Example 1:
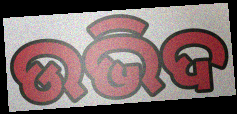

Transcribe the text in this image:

ଉଭିଦ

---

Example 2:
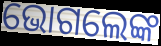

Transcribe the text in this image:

ଭୋଗଲେଙ୍କ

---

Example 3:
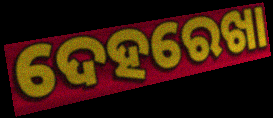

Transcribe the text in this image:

ଦେହରେଖା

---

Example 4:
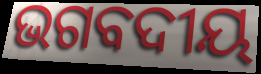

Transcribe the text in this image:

ଭଗବଦୀୟ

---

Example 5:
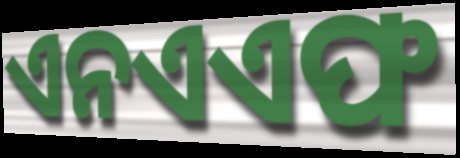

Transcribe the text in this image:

ଏନଏଏଫ